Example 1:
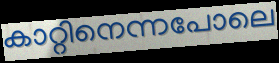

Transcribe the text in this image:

കാറ്റിനെന്നപോലെ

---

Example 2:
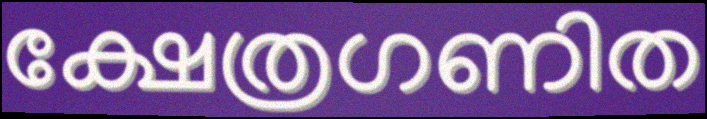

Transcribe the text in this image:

ക്ഷേത്രഗണിത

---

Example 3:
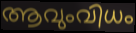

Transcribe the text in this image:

ആവുംവിധം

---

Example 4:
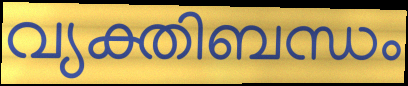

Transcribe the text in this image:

വ്യക്തിബന്ധം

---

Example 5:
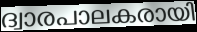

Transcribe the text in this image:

ദ്വാരപാലകരായി